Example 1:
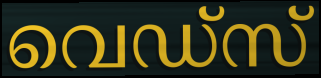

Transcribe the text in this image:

വെഡ്സ്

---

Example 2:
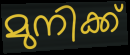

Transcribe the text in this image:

മുനിക്ക്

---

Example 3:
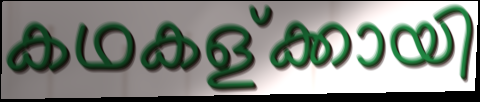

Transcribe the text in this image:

കഥകള്ക്കായി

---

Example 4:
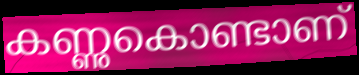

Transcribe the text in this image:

കണ്ണുകൊണ്ടാണ്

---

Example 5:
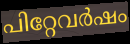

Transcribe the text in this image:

പിറ്റേവർഷം